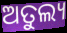
ଅତୁଲ୍ୟ